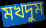
মখদুম